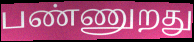
பண்ணுறது